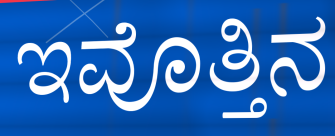
ಇವೊತ್ತಿನ